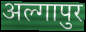
अल्गापुर